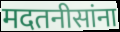
मदतनीसांना